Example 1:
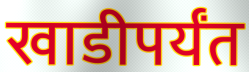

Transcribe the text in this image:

खाडीपर्यंत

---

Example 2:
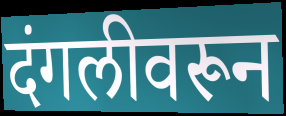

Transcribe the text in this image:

दंगलीवरून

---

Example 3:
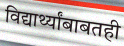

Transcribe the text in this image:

विद्यार्थ्यांबाबतही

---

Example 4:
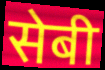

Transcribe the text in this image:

सेबी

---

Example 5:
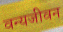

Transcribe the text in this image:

वन्यजीवन